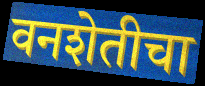
वनशेतीचा